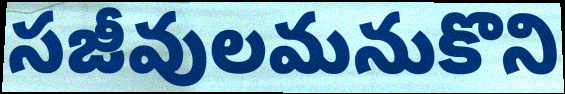
సజీవులమనుకొని